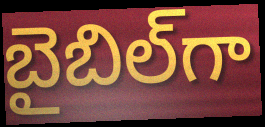
బైబిల్‌గా